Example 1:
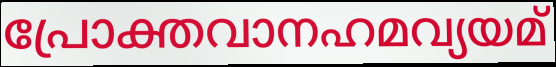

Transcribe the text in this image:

പ്രോക്തവാനഹമവ്യയമ്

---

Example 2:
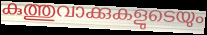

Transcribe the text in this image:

കുത്തുവാക്കുകളുടെയും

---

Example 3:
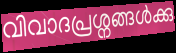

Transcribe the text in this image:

വിവാദപ്രശ്നങ്ങൾക്കു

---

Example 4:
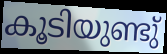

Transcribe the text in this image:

കൂടിയുണ്ടു്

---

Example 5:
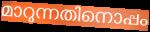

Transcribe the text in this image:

മാറുന്നതിനൊപ്പം